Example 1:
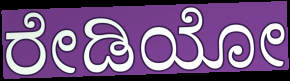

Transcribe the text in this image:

ರೇಡಿಯೋ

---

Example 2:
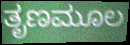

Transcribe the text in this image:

ತೃಣಮೂಲ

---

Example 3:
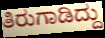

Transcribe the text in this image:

ತಿರುಗಾಡಿದ್ದು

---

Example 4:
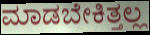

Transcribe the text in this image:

ಮಾಡಬೇಕಿತ್ತಲ್ಲ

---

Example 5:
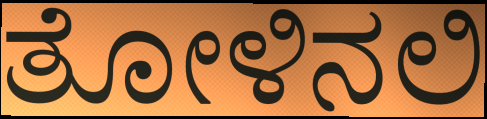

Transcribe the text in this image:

ತೋಳಿನಲಿ